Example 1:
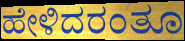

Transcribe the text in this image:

ಹೇಳಿದರಂತೂ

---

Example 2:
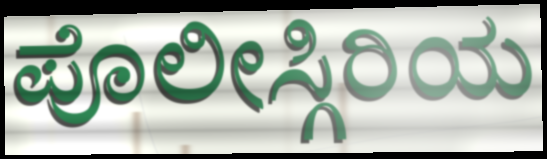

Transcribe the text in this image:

ಪೊಲೀಸ್ಗಿರಿಯ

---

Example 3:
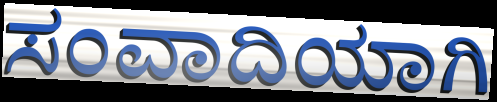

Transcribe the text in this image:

ಸಂವಾದಿಯಾಗಿ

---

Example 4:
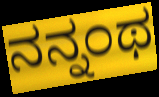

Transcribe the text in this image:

ನನ್ನಂಥ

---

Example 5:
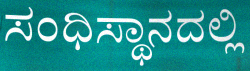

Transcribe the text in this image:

ಸಂಧಿಸ್ಥಾನದಲ್ಲಿ